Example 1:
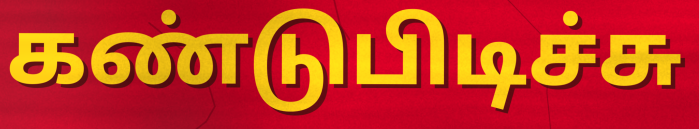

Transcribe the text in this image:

கண்டுபிடிச்சு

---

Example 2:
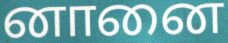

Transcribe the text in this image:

னானை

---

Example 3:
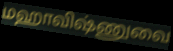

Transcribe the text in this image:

மஹாவிஷ்ணுவை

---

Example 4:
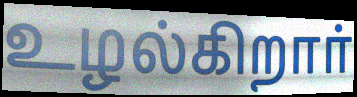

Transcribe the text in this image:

உழல்கிறார்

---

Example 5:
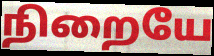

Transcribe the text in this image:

நிறையே